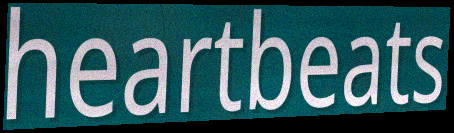
heartbeats